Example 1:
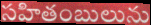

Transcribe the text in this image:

సహితంబులును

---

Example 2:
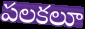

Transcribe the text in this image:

పలకలూ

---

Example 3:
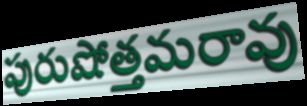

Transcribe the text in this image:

పురుషోత్తమరావు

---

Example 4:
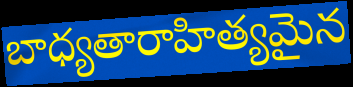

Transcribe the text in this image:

బాధ్యతారాహిత్యమైన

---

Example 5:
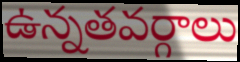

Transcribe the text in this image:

ఉన్నతవర్గాలు